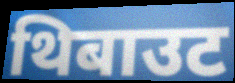
थिबाउट